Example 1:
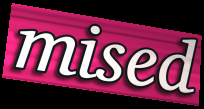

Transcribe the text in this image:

mised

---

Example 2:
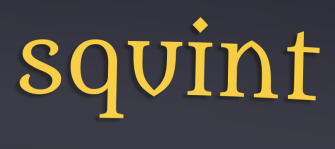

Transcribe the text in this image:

squint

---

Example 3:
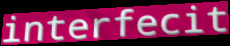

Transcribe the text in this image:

interfecit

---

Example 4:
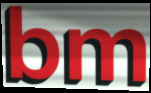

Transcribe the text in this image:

bm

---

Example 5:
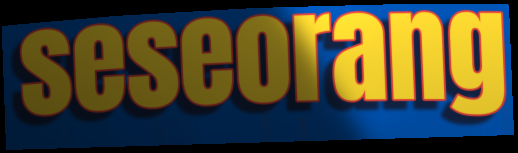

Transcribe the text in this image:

seseorang